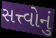
સત્ત્વોનું